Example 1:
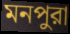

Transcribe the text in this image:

মনপুরা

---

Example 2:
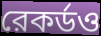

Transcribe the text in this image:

রেকর্ডও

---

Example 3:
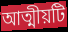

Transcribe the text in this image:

আত্মীয়টি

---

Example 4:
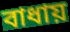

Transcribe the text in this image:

বাধায়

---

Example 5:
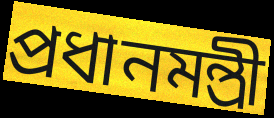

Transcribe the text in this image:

প্রধানমন্ত্রী